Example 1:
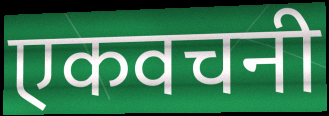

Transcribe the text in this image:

एकवचनी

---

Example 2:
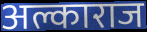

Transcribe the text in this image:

अल्काराज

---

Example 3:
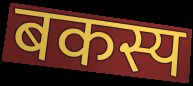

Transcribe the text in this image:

बकस्य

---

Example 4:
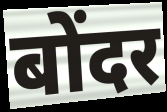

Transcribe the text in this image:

बोंदर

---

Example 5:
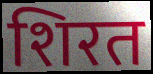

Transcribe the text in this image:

शिरत